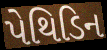
પેથિડિન